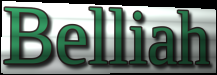
Belliah